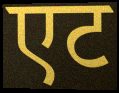
एट